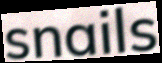
snails